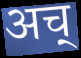
अच्